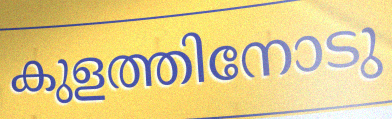
കുളത്തിനോടു